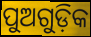
ପୁଅଗୁଡ଼ିକ